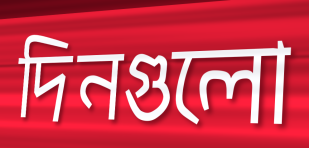
দিনগুলো